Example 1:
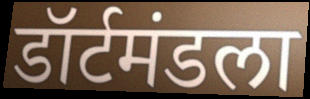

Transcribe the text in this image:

डॉर्टमंडला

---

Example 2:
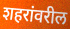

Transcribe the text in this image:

शहरांवरील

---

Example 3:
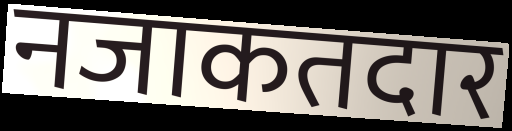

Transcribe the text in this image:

नजाकतदार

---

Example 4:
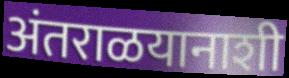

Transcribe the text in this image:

अंतराळयानाशी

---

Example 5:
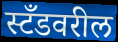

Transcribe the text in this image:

स्टँडवरील